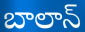
బాలాన్